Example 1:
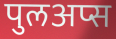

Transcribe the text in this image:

पुलअप्स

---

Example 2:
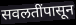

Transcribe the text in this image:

सवलतींपासून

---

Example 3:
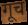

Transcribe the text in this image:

गूच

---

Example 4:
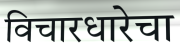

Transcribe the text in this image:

विचारधारेचा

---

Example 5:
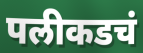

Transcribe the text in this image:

पलीकडचं